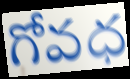
గోవధ